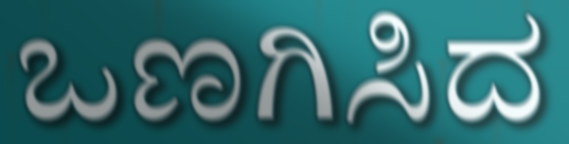
ಒಣಗಿಸಿದ